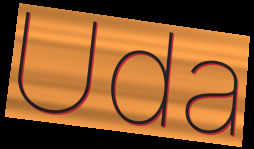
Uda